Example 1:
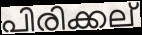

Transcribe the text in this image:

പിരിക്കല്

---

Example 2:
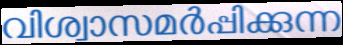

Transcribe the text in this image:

വിശ്വാസമർപ്പിക്കുന്ന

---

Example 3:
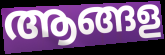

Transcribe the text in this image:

ആങ്ങള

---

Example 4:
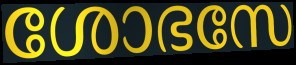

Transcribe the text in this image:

ശോഭസേ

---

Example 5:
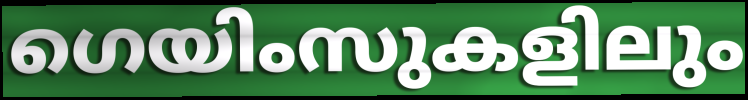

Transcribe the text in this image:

ഗെയിംസുകളിലും